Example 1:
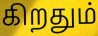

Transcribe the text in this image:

கிறதும்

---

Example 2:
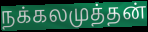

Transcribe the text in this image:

நக்கலமுத்தன்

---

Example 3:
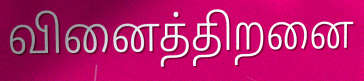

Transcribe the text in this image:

வினைத்திறனை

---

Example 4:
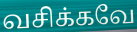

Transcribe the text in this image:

வசிக்கவே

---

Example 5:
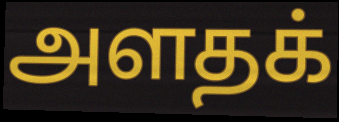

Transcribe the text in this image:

அளதக்